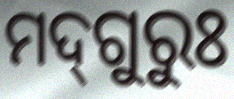
ମଦ୍‌ଗୁରୁଃ